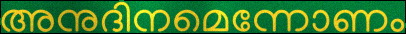
അനുദിനമെന്നോണം